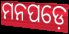
ମନପଡ଼େ